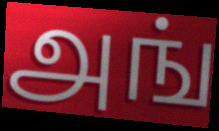
அங்